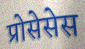
प्रोसेसेस